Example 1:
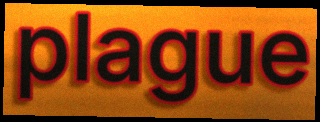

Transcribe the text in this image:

plague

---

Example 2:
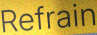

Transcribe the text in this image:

Refrain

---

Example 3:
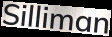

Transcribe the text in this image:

Silliman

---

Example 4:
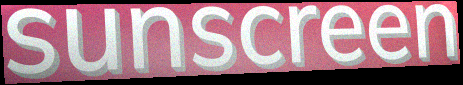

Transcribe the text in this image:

sunscreen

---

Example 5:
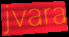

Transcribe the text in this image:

jvara